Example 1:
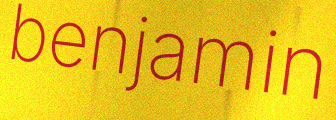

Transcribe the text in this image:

benjamin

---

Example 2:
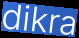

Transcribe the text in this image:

dikra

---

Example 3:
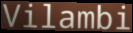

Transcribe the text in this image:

Vilambi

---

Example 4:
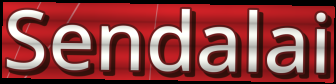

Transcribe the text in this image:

Sendalai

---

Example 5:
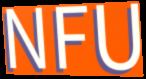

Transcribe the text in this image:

NFU